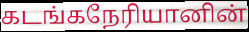
கடங்கநேரியானின்